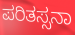
ಪರಿತಸ್ಸನಾ